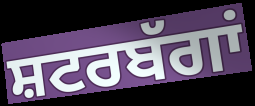
ਸ਼ਟਰਬੱਗਾਂ